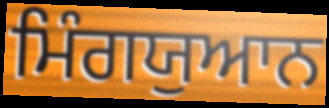
ਮਿੰਗਯੁਆਨ